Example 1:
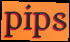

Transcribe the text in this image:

pips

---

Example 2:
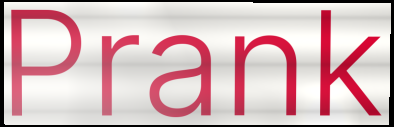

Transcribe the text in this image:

Prank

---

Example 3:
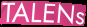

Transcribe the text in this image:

TALENs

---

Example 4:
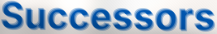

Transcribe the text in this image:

Successors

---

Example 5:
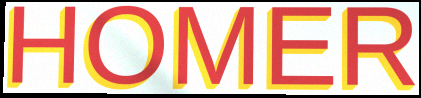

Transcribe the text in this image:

HOMER